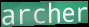
archer